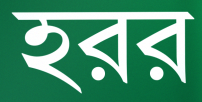
হরর